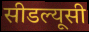
सीडल्यूसी